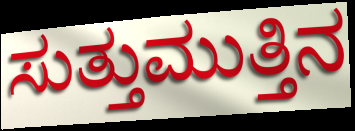
ಸುತ್ತುಮುತ್ತಿನ